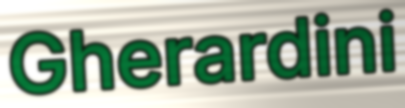
Gherardini